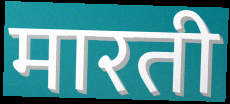
मारती